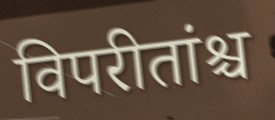
विपरीतांश्च